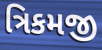
ત્રિકમજી